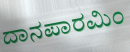
ದಾನಪಾರಮಿಂ